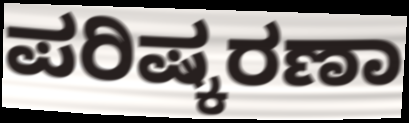
ಪರಿಷ್ಕರಣಾ